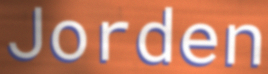
Jorden